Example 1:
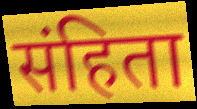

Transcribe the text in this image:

संहिता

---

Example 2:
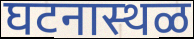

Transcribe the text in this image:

घटनास्थळ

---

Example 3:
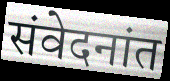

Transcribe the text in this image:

संवेदनांत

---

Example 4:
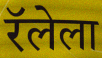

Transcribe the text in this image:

रॅलेला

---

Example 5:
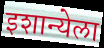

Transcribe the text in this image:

इशान्येला